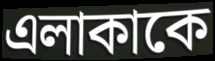
এলাকাকে